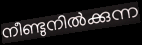
നീണ്ടുനിൽക്കുന്ന